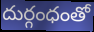
దుర్గంధంతో